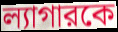
ল্যাগারকে